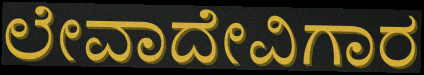
ಲೇವಾದೇವಿಗಾರ